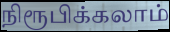
நிரூபிக்கலாம்